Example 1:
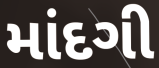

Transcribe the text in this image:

માંદગી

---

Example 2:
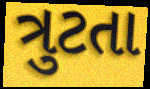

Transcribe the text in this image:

ત્રુટતા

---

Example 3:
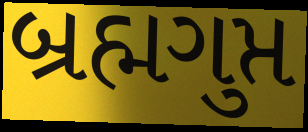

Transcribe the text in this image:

બ્રહ્મગુપ્ત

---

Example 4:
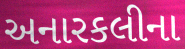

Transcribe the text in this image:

અનારકલીના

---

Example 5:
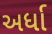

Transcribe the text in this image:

અર્ધા